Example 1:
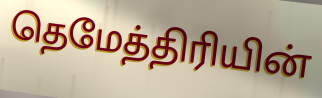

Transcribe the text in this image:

தெமேத்திரியின்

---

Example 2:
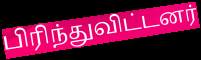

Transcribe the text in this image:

பிரிந்துவிட்டனர்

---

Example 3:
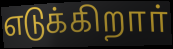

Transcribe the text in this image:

எடுக்கிறார்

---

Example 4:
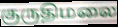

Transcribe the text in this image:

குருதிமலை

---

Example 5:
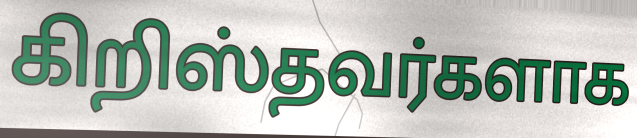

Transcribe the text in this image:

கிறிஸ்தவர்களாக